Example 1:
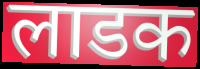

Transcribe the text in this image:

लाडक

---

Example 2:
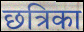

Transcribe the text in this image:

छत्रिका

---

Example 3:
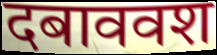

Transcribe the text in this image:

दबाववश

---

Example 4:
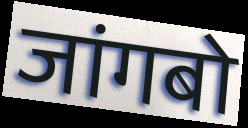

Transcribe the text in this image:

जांगबो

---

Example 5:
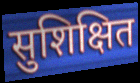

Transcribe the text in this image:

सुशिक्षित